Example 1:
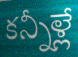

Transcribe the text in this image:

కన్నీళ్లే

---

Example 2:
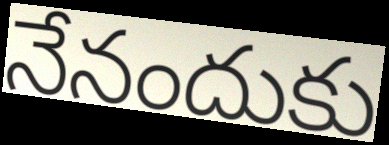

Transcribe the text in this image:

నేనందుకు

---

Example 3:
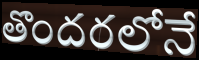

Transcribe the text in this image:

తొందరలోనే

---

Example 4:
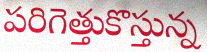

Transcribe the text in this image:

పరిగెత్తుకొస్తున్న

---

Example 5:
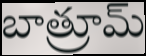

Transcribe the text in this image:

బాత్రూమ్